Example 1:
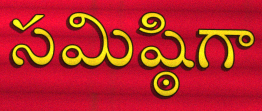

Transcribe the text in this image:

సమిష్ఠిగా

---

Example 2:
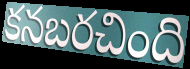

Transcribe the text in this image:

కనబరచింది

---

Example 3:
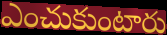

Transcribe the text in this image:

ఎంచుకుంటారు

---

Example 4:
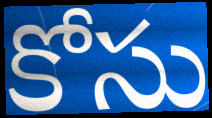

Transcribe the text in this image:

కోసు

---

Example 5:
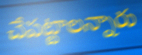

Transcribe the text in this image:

చేపట్టాలన్నారు